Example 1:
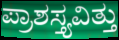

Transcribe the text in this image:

ಪ್ರಾಶಸ್ತ್ಯವಿತ್ತು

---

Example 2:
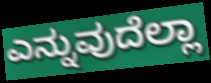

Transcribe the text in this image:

ಎನ್ನುವುದೆಲ್ಲಾ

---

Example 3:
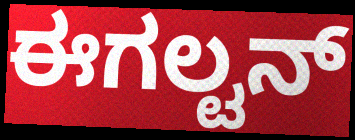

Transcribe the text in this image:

ಈಗಲ್ಟನ್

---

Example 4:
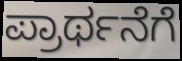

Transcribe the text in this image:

ಪ್ರಾರ್ಥನೆಗೆ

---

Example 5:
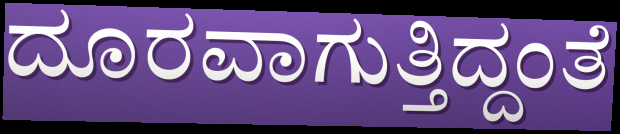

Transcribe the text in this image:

ದೂರವಾಗುತ್ತಿದ್ದಂತೆ